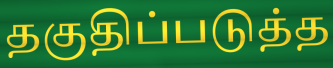
தகுதிப்படுத்த